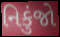
નિકુંજો